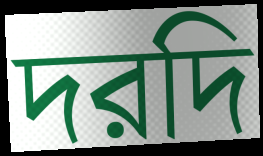
দরদি